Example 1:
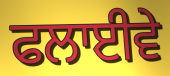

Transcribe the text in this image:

ਫਲਾਈਵੇ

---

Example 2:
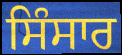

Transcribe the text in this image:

ਸਿੰਸਾਰ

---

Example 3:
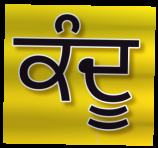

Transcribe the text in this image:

ਕੰਦੂ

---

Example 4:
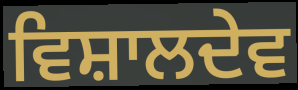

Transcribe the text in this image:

ਵਿਸ਼ਾਲਦੇਵ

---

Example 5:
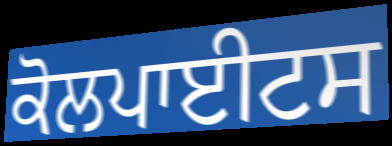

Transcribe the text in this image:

ਕੋਲਪਾਈਟਸ